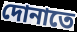
দোনাতে